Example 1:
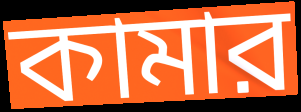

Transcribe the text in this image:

কামার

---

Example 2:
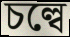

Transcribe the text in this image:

চল্বে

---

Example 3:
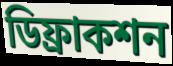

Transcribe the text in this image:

ডিফ্রাকশন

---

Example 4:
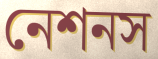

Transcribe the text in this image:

নেশনস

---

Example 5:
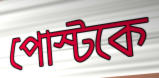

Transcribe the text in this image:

পোস্টকে